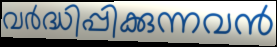
വർദ്ധിപ്പിക്കുന്നവൻ